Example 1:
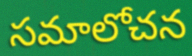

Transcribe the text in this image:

సమాలోచన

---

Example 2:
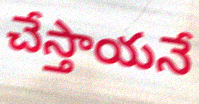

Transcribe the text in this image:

చేస్తాయనే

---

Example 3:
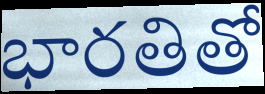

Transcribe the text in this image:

భారతితో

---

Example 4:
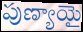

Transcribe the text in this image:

పుణ్యాయై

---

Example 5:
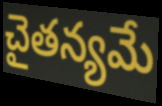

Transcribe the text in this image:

చైతన్యమే